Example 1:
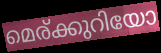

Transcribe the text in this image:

മെര്ക്കുറിയോ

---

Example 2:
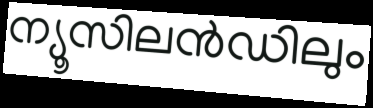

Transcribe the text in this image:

ന്യൂസിലൻഡിലും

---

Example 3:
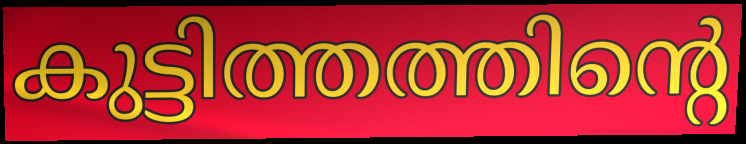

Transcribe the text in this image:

കുട്ടിത്തത്തിന്റെ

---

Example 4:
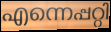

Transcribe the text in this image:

എന്നെപ്പറ്റി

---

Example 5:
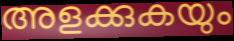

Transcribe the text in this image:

അളക്കുകയും